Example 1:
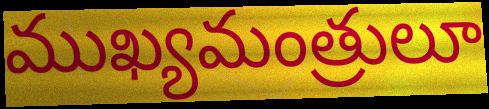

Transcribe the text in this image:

ముఖ్యమంత్రులూ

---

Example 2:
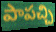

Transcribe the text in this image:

పాపచ్చి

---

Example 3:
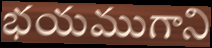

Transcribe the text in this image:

భయముగాని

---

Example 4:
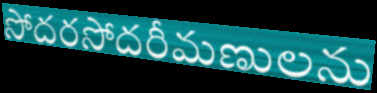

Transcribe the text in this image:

సోదరసోదరీమణులను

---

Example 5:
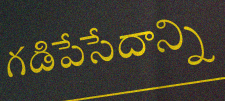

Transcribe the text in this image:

గడిపేసేదాన్ని